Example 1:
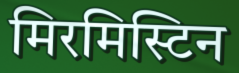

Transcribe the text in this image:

मिरमिस्टिन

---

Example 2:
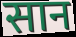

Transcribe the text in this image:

सान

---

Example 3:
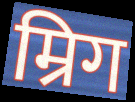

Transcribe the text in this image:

म्रिग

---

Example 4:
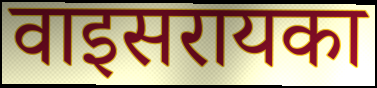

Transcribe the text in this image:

वाइसरायका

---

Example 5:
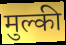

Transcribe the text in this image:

मुल्की